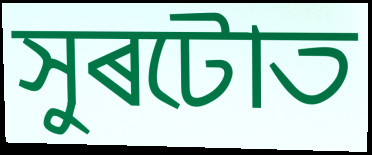
সুৰটোত